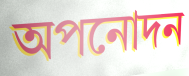
অপনোদন